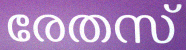
രേതസ്